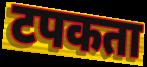
टपकता